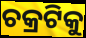
ଚକ୍ରଟିକୁ